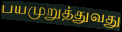
பயமுறுத்துவது